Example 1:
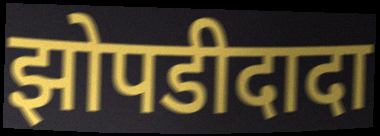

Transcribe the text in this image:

झोपडीदादा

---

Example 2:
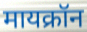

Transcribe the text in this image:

मायक्रॉन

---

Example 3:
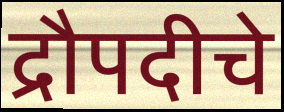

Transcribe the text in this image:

द्रौपदीचे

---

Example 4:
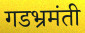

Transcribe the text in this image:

गडभ्रमंती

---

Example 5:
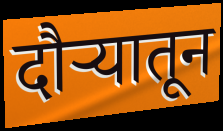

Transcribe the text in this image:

दौर्‍यातून